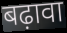
बढ़ावा